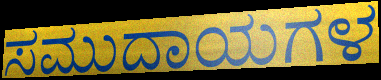
ಸಮುದಾಯಗಳ